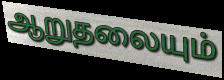
ஆறுதலையும்